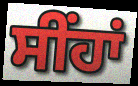
ਸੀਂਹਾਂ